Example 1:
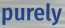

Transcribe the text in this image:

purely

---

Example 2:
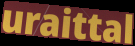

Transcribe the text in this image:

uraittal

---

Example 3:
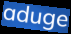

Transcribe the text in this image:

aduge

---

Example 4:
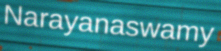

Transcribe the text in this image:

Narayanaswamy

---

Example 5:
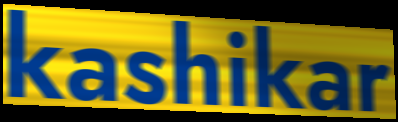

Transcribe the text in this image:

kashikar